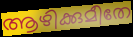
ആഴിക്കുമീതേ